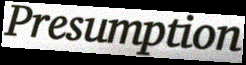
Presumption